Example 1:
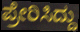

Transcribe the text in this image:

ಪ್ರೇರಿಸಿದ್ದು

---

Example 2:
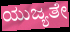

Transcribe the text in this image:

ಯುಜ್ಯತೇ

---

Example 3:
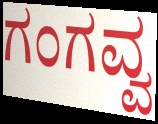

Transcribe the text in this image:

ಗಂಗವ್ವ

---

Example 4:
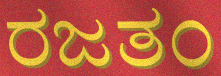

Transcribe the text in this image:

ರಜತಂ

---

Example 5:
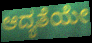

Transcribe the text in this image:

ಆದ್ಯತೆಯೇ